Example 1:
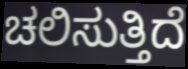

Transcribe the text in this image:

ಚಲಿಸುತ್ತಿದೆ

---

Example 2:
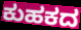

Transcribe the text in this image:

ಕುಹಕದ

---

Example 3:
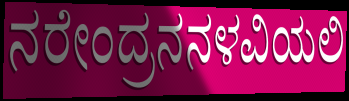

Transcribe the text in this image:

ನರೇಂದ್ರನನಳವಿಯಲಿ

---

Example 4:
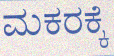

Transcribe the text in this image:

ಮಕರಕ್ಕೆ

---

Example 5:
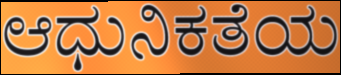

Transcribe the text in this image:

ಆಧುನಿಕತೆಯ